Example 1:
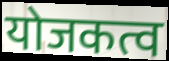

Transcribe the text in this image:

योजकत्व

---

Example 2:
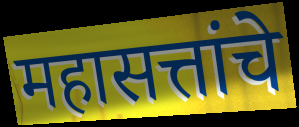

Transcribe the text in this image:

महासत्तांचे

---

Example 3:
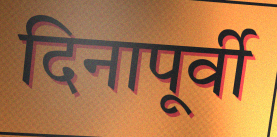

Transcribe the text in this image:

दिनापूर्वी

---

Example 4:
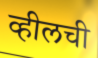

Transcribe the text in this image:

व्हीलची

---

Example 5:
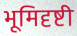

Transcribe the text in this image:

भूमिदृष्टी